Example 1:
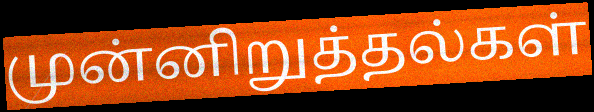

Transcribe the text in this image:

முன்னிறுத்தல்கள்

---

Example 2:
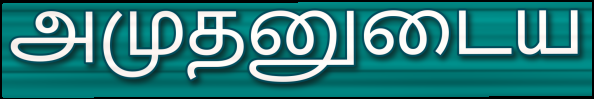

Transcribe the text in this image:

அமுதனுடைய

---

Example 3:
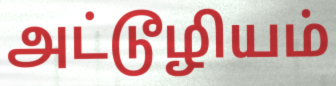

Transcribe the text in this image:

அட்டூழியம்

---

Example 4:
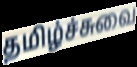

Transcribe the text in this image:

தமிழ்ச்சுவை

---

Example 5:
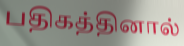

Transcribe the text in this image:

பதிகத்தினால்